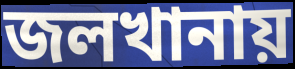
জলখানায়